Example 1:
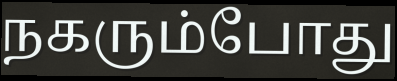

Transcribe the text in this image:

நகரும்போது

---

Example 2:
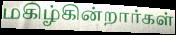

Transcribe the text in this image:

மகிழ்கின்றார்கள்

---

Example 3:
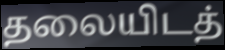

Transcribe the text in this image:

தலையிடத்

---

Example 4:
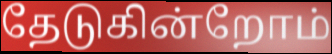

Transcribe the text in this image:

தேடுகின்றோம்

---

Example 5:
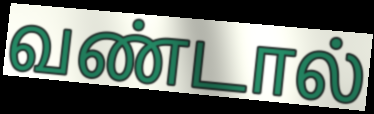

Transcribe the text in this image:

வண்டால்